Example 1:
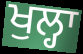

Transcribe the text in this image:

ਖੁਲ੍ਹਾ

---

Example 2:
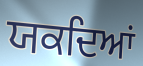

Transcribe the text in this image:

ਯਕਦਿਆਂ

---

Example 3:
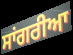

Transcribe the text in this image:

ਸਾਂਗਰੀਆ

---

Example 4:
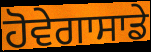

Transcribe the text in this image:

ਹੋਵੇਗਾਸਾਡੇ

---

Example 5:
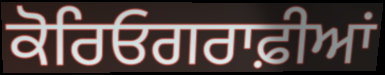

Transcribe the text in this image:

ਕੋਰਿਓਗਰਾਫ਼ੀਆਂ